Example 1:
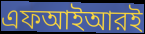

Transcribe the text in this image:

এফআইআরই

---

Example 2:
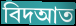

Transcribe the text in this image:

বিদআত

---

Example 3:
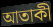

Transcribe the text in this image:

আতাকী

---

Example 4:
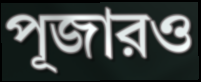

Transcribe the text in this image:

পূজারও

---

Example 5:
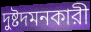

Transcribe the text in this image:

দুষ্টদমনকারী